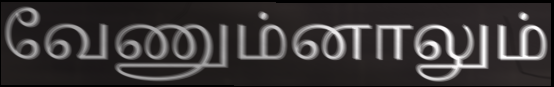
வேணும்னாலும்